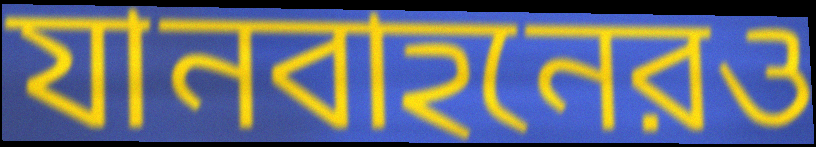
যানবাহনেরও